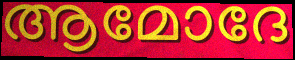
ആമോദേ